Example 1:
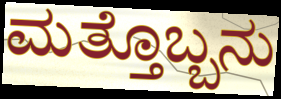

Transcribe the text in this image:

ಮತ್ತೊಬ್ಬನು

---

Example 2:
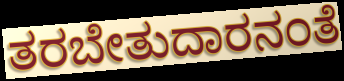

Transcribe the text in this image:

ತರಬೇತುದಾರನಂತೆ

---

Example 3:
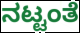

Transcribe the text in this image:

ನಟ್ಟಂತೆ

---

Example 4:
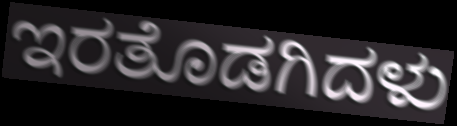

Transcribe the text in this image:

ಇರತೊಡಗಿದಳು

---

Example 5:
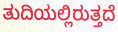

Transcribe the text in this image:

ತುದಿಯಲ್ಲಿರುತ್ತದೆ